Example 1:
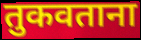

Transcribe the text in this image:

तुकवताना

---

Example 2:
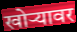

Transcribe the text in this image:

खोऱ्यावर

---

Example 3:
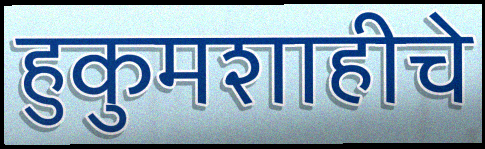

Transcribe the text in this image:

हुकुमशाहीचे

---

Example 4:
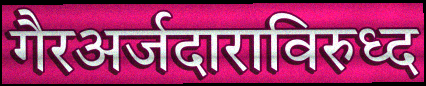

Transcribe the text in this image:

गैरअर्जदाराविरुध्द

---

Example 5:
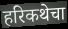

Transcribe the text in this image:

हरिकथेचा